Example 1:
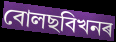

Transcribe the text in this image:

বোলছবিখনৰ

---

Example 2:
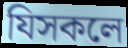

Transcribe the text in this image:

যিসকলে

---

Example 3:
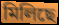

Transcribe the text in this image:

মিলিছে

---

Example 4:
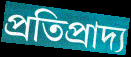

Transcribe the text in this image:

প্ৰতিপ্ৰাদ্য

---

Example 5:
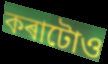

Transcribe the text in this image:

কৰাটোও